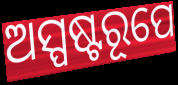
ଅସ୍ପଷ୍ଟରୂପେ